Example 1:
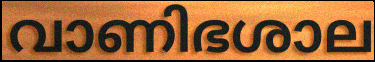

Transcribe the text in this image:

വാണിഭശാല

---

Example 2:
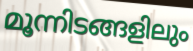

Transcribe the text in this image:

മൂന്നിടങ്ങളിലും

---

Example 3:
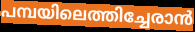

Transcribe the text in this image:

പമ്പയിലെത്തിച്ചേരാൻ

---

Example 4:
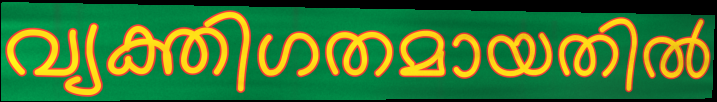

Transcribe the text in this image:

വ്യക്തിഗതമായതിൽ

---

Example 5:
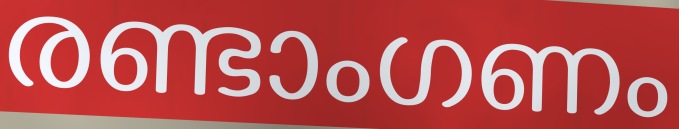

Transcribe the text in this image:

രണ്ടാംഗണം